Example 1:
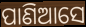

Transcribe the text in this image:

ପାଣିଆସେ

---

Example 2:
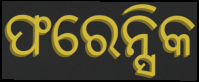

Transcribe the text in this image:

ଫରେନ୍ସିକ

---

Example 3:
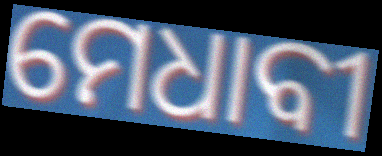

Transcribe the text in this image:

ମେଧାବୀ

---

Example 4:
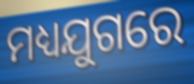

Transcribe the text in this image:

ମଧ୍ୟଯୁଗରେ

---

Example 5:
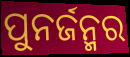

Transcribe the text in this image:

ପୁନର୍ଜନ୍ମର